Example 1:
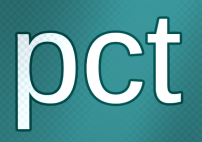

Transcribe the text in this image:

pct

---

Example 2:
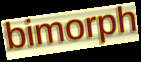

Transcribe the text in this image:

bimorph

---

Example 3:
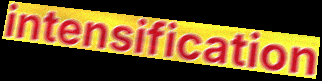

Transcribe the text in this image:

intensification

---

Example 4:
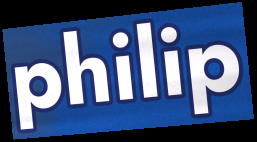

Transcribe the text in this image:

philip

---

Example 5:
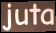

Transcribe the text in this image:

juta